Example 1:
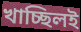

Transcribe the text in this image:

খাচ্ছিলই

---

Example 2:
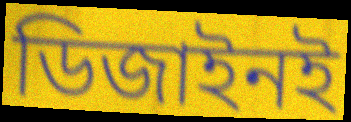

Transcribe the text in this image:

ডিজাইনই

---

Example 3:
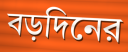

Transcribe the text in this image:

বড়দিনের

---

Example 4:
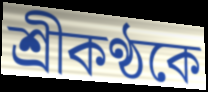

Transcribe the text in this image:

শ্রীকণ্ঠকে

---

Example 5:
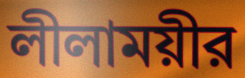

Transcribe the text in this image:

লীলাময়ীর